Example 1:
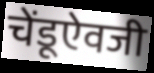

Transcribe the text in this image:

चेंडूऐवजी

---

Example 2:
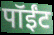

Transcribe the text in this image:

पॉईंट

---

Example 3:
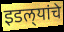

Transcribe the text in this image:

इडल्यांचे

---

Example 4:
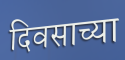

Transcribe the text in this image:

दिवसाच्या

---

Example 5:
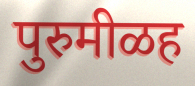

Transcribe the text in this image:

पुरुमीळह